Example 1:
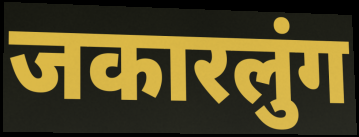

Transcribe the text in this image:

जकारलुंग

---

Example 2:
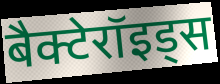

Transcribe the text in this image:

बैक्टेरॉइड्स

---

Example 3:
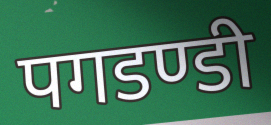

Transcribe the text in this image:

पगडण्डी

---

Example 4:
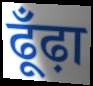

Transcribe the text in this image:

ढूँढ़ा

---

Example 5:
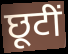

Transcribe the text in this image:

छूटीं